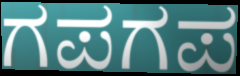
ಗಪಗಪ